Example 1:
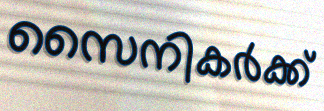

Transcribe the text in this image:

സൈനികർക്ക്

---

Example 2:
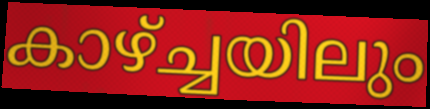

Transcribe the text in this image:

കാഴ്ച്ചയിലും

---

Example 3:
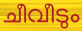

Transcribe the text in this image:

ചീവീടും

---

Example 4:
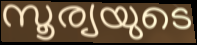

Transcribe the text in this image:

സൂര്യയുടെ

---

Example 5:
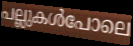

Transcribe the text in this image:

പല്ലുകൾപോലെ